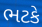
ભટકે